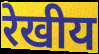
रेखीय